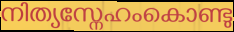
നിത്യസ്നേഹംകൊണ്ടു